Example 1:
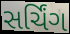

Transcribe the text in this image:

સર્ચિંગ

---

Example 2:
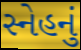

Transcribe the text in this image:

સ્નેહનું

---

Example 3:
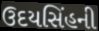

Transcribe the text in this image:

ઉદયસિંહની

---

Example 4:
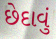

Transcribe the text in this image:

છેદાવું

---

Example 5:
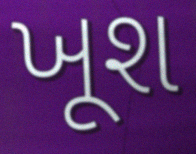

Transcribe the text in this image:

ખૂશ